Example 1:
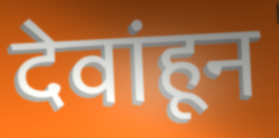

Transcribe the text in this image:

देवांहून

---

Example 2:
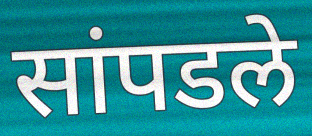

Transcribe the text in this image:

सांपडले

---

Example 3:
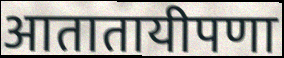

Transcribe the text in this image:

आतातायीपणा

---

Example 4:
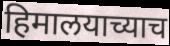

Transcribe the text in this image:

हिमालयाच्याच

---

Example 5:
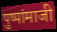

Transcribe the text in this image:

पुष्पांमाजी